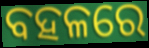
ବହଳରେ